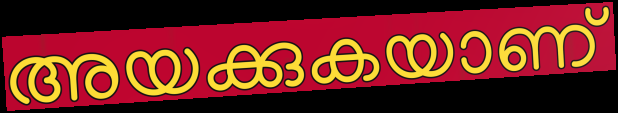
അയക്കുകയാണ്